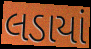
લડાયાં